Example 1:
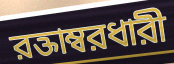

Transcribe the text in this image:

রক্তাম্বরধারী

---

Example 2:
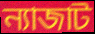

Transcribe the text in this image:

ন্যাজাট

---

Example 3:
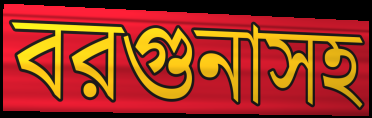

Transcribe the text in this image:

বরগুনাসহ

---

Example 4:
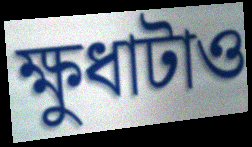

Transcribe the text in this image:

ক্ষুধাটাও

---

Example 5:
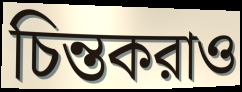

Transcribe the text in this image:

চিন্তকরাও